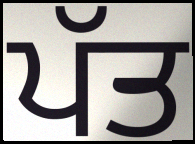
ਪੱਤ